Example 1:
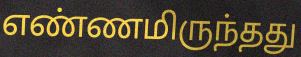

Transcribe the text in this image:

எண்ணமிருந்தது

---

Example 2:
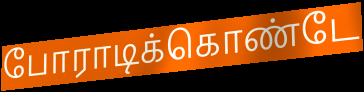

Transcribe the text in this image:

போராடிக்கொண்டே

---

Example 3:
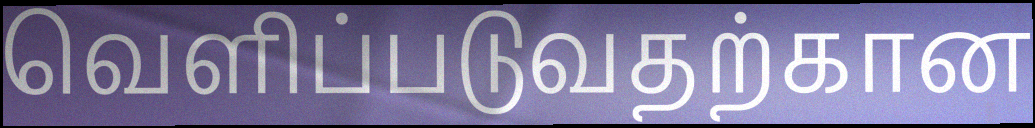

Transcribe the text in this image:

வெளிப்படுவதற்கான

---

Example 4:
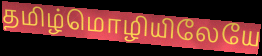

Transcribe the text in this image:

தமிழ்மொழியிலேயே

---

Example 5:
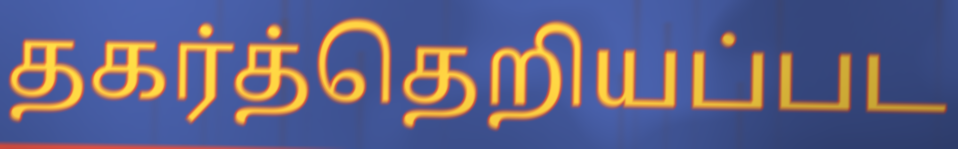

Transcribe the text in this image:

தகர்த்தெறியப்பட